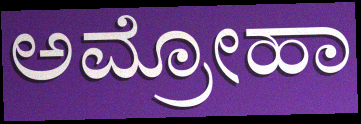
ಅಮ್ರೋಹಾ